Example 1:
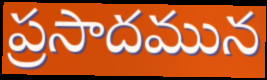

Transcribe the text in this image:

ప్రసాదమున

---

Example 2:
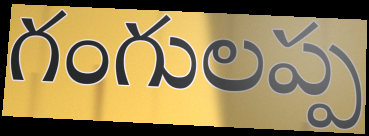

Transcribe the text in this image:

గంగులప్ప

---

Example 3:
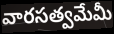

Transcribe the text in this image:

వారసత్వమేమీ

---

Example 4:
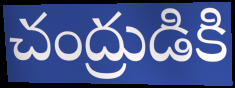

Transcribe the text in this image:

చంద్రుడికి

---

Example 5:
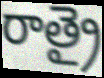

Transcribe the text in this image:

రాత్రై